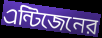
এন্টিজেনের